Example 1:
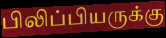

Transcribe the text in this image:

பிலிப்பியருக்கு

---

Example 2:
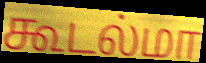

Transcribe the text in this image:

கூடல்மா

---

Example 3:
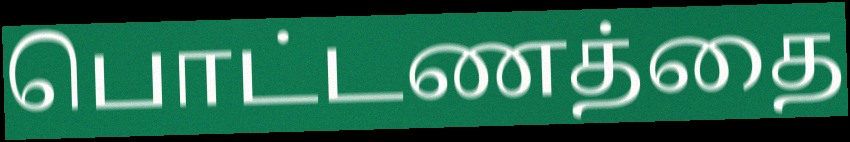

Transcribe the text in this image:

பொட்டணத்தை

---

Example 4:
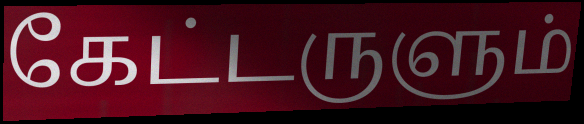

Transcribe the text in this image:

கேட்டருளும்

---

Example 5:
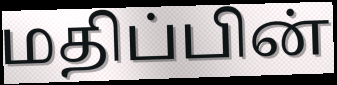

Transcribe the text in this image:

மதிப்பின்